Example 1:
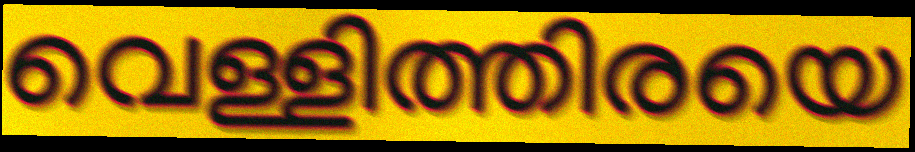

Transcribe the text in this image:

വെള്ളിത്തിരയെ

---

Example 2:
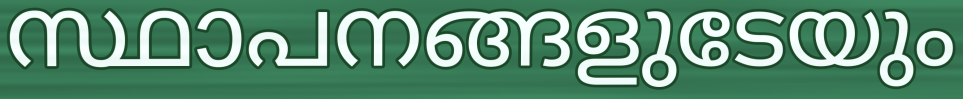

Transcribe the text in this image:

സ്ഥാപനങ്ങളുടേയും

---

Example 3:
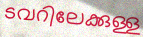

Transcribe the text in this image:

ടവറിലേക്കുള്ള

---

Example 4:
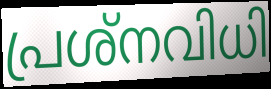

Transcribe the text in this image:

പ്രശ്നവിധി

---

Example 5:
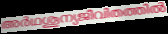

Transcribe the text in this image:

അർഥശൂന്യജീവിതത്തിൽ